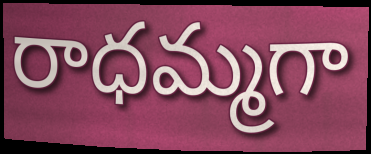
రాధమ్మగా